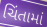
ચિંતામાં